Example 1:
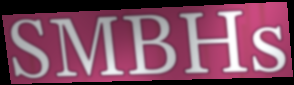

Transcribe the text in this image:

SMBHs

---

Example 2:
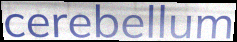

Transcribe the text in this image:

cerebellum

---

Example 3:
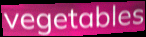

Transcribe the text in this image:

vegetables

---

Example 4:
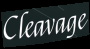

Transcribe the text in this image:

Cleavage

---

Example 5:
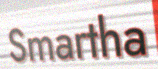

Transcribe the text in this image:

Smartha